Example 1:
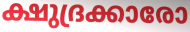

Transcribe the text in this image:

ക്ഷുദ്രക്കാരോ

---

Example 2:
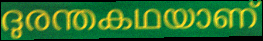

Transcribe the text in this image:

ദുരന്തകഥയാണ്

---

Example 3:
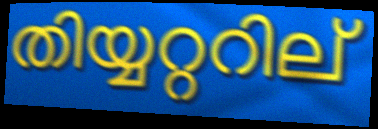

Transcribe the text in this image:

തിയ്യറ്ററില്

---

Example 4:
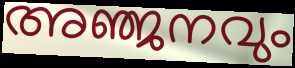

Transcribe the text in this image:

അഞ്ജനവും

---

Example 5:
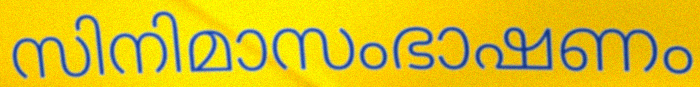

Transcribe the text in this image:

സിനിമാസംഭാഷണം